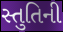
સ્તુતિની